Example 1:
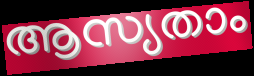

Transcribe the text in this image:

ആസ്യതാം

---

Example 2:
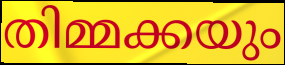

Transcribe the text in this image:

തിമ്മക്കയും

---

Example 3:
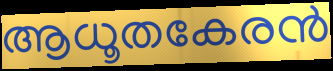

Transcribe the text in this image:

ആധൂതകേരൻ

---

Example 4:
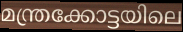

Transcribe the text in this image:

മന്ത്രക്കോട്ടയിലെ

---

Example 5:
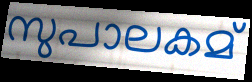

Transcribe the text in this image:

സുപാലകമ്